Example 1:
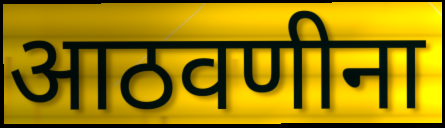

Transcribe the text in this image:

आठवणीना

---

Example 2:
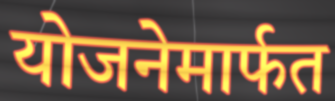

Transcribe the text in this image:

योजनेमार्फत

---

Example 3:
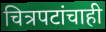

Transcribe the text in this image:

चित्रपटांचाही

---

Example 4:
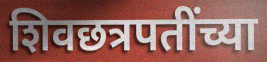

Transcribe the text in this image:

शिवछत्रपतींच्या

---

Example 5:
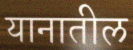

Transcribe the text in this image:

यानातील